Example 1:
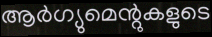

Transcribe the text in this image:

ആർഗ്യുമെന്റുകളുടെ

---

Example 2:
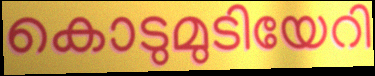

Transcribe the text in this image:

കൊടുമുടിയേറി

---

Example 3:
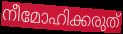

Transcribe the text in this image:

നീമോഹിക്കരുത്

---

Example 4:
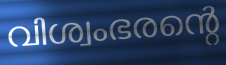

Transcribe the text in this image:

വിശ്വംഭരന്റെ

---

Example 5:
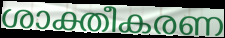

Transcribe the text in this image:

ശാക്തീകരണ